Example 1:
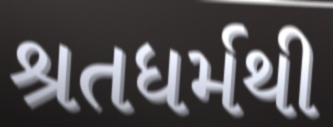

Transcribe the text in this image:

શ્રતધર્મથી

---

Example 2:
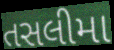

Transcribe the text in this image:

તસલીમા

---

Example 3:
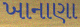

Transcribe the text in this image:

ખાનાણા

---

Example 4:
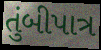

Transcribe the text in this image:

તુંબીપાત્ર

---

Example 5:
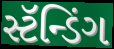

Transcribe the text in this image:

સ્ટૅન્ડિંગ